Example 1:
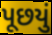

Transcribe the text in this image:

પૂછયું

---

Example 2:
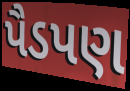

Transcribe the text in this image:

પૈડપણ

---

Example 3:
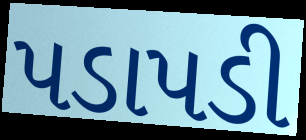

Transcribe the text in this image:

પડાપડી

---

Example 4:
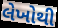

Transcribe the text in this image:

લેખોથી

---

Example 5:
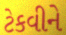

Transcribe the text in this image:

ટેકવીને